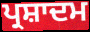
ਪ੍ਰਸ਼ਾਦਮ